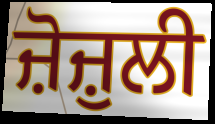
ਜ਼ੋਜ਼ੁਲੀ